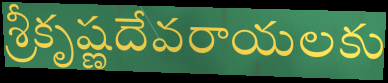
శ్రీకృష్ణదేవరాయలకు